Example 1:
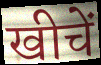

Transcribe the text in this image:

खीचें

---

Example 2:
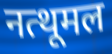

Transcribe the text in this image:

नत्थूमल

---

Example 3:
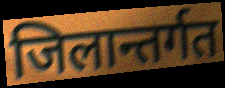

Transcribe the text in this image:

जिलान्तर्गत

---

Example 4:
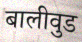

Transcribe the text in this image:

बालीवुड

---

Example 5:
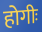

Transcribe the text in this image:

होगीः